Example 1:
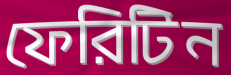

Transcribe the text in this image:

ফেরিটিন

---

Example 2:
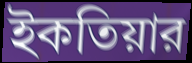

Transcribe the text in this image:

ইকতিয়ার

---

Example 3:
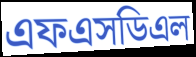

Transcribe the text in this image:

এফএসডিএল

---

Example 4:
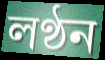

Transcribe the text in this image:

লণ্ঠন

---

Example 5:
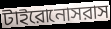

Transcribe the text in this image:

টাইরোনোসরাস